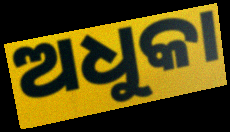
ଅଧୁକା